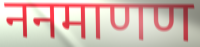
ननमाणण